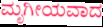
ಮೃಗೀಯವಾದ